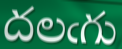
దలఁగు